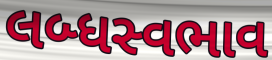
લબ્ધસ્વભાવ